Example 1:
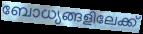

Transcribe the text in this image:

ബോധ്യങ്ങളിലേക്ക്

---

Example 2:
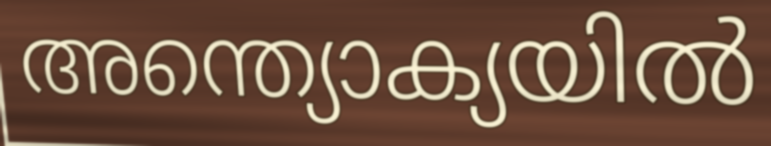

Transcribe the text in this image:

അന്ത്യൊക്യയിൽ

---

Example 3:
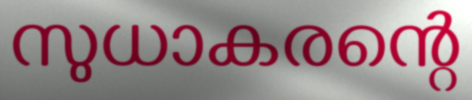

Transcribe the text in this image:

സുധാകരന്റെ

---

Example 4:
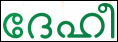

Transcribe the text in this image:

ദേഹീ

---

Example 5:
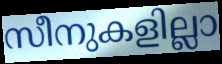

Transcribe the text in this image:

സീനുകളില്ലാ